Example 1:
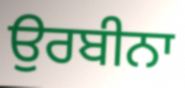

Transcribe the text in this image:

ਉਰਬੀਨਾ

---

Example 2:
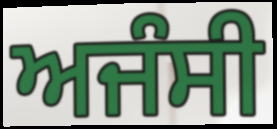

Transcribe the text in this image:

ਅਜੰਸੀ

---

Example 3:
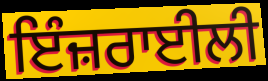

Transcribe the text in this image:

ਇੰਜ਼ਰਾਈਲੀ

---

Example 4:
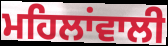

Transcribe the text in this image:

ਮਹਿਲਾਂਵਾਲੀ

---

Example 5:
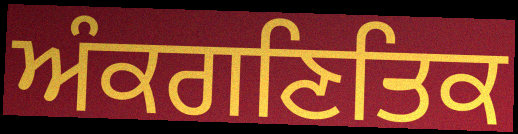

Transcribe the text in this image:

ਅੰਕਗਣਿਤਿਕ